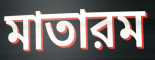
মাতারম